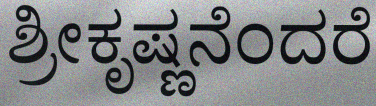
ಶ್ರೀಕೃಷ್ಣನೆಂದರೆ